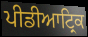
ਪੀਡੀਆਟ੍ਰਿਕ